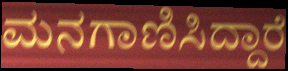
ಮನಗಾಣಿಸಿದ್ದಾರೆ